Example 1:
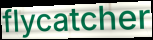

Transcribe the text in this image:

flycatcher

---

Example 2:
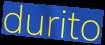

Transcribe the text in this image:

durito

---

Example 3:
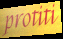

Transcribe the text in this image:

protiti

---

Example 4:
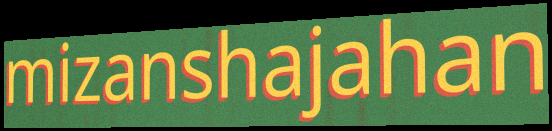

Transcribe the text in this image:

mizanshajahan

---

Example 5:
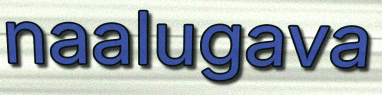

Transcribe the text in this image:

naalugava